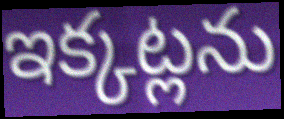
ఇక్కట్లను